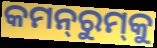
କମନ୍‍ରୁମ୍‍କୁ